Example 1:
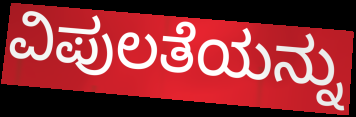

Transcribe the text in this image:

ವಿಪುಲತೆಯನ್ನು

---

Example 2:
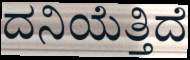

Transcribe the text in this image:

ದನಿಯೆತ್ತಿದೆ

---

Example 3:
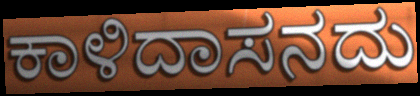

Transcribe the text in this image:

ಕಾಳಿದಾಸನದು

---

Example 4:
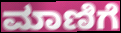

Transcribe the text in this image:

ಮಾಣಿಗೆ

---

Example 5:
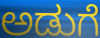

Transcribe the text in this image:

ಅಡುಗೆ